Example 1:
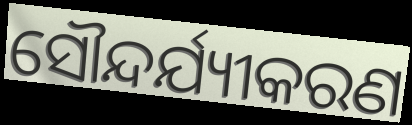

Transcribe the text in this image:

ସୌନ୍ଦର୍ଯ୍ୟୀକରଣ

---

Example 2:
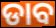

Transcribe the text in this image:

ଡାବ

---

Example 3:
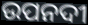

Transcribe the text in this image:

ଉପନଦୀ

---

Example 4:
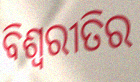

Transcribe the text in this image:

ବିଶ୍ଵରୀତିର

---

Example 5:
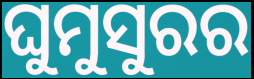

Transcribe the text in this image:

ଘୁମୁସୁରର